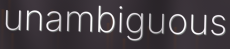
unambiguous